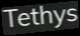
Tethys